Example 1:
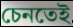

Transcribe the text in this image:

চেনতেই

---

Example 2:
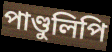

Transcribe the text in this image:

পাণ্ডুলিপি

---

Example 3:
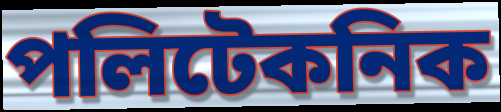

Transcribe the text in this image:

পলিটেকনিক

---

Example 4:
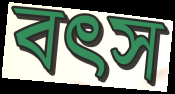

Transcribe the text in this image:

বৎস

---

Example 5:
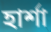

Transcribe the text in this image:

হার্শা